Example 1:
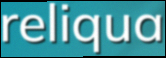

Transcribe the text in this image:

reliqua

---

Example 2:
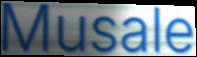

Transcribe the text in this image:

Musale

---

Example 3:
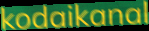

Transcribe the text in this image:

kodaikanal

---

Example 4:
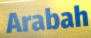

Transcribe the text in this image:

Arabah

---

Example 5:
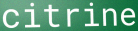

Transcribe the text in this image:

citrine